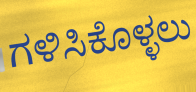
ಗಳಿಸಿಕೊಳ್ಳಲು